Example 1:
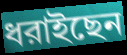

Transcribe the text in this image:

ধরাইছেন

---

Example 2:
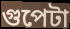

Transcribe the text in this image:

গুপেটা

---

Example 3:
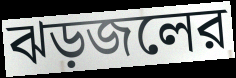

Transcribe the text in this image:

ঝড়জলের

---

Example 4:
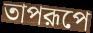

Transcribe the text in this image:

তাপরূপে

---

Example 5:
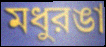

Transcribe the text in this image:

মধুরঙা